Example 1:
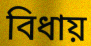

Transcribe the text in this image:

বিধায়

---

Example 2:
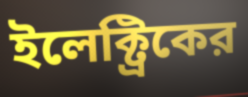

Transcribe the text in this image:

ইলেক্ট্রিকের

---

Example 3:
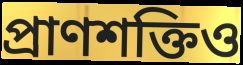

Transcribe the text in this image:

প্রাণশক্তিও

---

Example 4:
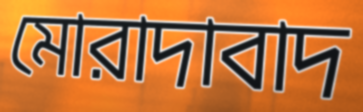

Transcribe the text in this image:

মোরাদাবাদ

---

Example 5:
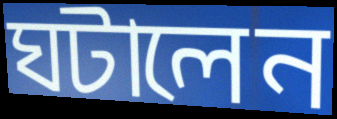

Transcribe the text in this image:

ঘটালেন